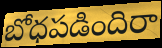
బోధపడిందిరా